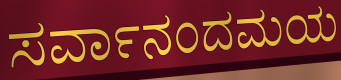
ಸರ್ವಾನಂದಮಯ